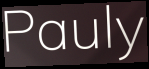
Pauly